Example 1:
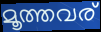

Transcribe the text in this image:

മൂത്തവര്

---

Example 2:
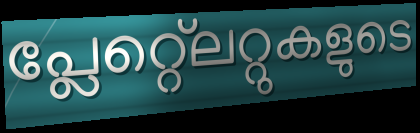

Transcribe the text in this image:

പ്ലേറ്റ്ലെറ്റുകളുടെ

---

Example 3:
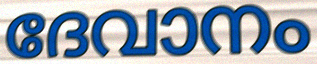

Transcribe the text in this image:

ദേവാനം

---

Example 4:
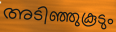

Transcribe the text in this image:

അടിഞ്ഞുകൂടും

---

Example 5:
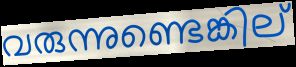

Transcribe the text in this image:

വരുന്നുണ്ടെങ്കില്